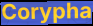
Corypha